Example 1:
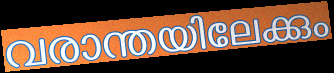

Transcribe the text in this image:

വരാന്തയിലേക്കും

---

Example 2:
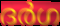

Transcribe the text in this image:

ദർഗ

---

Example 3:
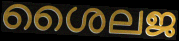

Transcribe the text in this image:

ശൈലജ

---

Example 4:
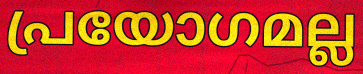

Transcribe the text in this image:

പ്രയോഗമല്ല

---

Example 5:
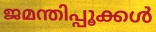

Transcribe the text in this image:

ജമന്തിപ്പൂക്കൾ